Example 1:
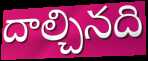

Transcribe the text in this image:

దాల్చినది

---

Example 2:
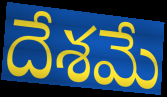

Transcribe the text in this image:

దేశమే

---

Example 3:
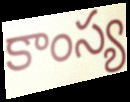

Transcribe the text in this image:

కాంస్య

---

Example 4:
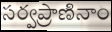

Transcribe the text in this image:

సర్వప్రాణినాం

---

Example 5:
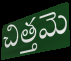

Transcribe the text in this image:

చిత్తమె